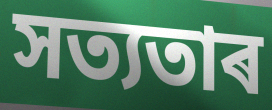
সত্যতাৰ